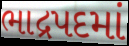
ભાદ્રપદમાં